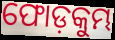
ଫୋଡ଼କୁମ୍ଭ